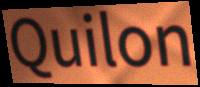
Quilon